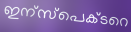
ഇന്സ്പെക്ടറെ